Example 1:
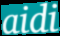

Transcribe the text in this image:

aidi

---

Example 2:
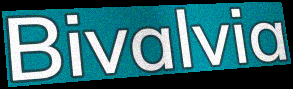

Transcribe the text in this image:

Bivalvia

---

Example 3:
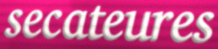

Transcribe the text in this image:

secateures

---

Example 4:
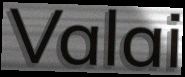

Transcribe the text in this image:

Valai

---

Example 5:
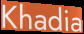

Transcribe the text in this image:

Khadia